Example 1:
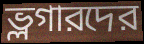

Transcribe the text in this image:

ভ্লগারদের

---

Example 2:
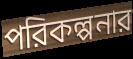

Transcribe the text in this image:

পরিকল্পনার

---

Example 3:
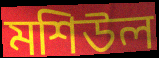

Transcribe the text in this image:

মশিউল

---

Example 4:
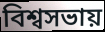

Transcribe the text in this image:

বিশ্বসভায়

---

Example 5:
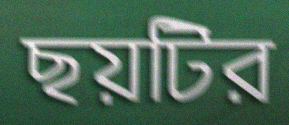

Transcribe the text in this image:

ছয়টির